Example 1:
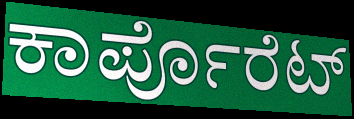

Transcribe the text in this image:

ಕಾರ್ಪೊರೆಟ್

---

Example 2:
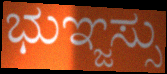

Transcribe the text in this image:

ಭುಞ್ಜಸ್ಸು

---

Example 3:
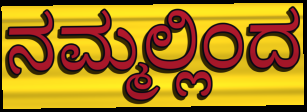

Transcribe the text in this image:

ನಮ್ಮಲ್ಲಿಂದ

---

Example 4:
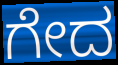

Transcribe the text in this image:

ಗೇದ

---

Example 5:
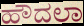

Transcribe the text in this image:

ಹೌದಲಾ